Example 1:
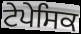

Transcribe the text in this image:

ਟੇਪੇਸਿਕ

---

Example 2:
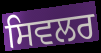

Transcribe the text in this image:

ਸਿਵਲਰ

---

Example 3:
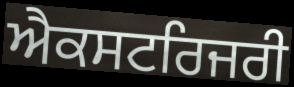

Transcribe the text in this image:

ਐਕਸਟਰਿਜਰੀ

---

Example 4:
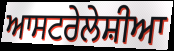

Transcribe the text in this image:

ਆਸਟਰੇਲੇਸ਼ੀਆ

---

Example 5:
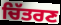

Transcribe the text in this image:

ਚਿੱਤਰਣ